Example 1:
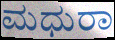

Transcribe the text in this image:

ಮಧುರಾ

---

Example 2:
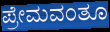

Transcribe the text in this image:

ಪ್ರೇಮವಂತೂ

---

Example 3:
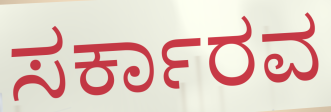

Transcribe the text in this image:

ಸರ್ಕಾರವ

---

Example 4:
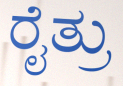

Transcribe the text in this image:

ರೈತ್ರು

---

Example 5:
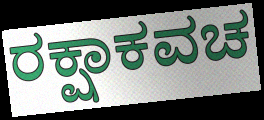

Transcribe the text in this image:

ರಕ್ಷಾಕವಚ